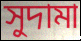
সুদামা